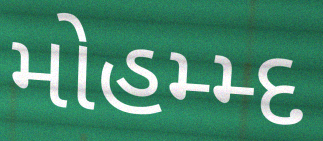
મોહમ્મ્દ